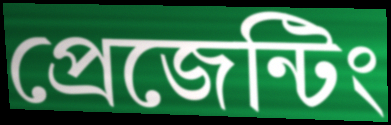
প্রেজেন্টিং